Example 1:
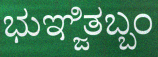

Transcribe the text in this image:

ಭುಞ್ಜಿತಬ್ಬಂ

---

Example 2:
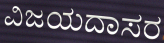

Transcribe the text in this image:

ವಿಜಯದಾಸರ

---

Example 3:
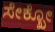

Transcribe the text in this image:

ಸೇಕ್ಖೋ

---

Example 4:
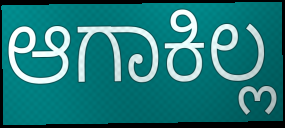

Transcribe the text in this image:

ಆಗಾಕಿಲ್ಲ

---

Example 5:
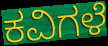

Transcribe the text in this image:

ಕವಿಗಳೆ